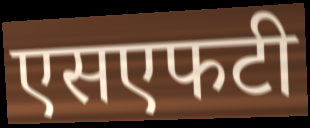
एसएफटी